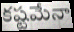
కష్టమేనా